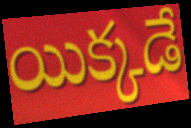
యిక్కడే